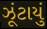
ઝૂંટાયું